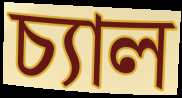
চ্যাল